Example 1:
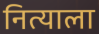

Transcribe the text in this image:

नित्याला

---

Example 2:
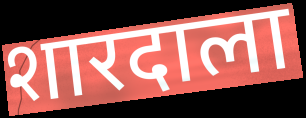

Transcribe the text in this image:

शारदाला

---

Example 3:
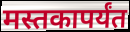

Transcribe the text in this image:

मस्तकापर्यंत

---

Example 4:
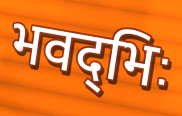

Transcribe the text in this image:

भवद्‌भिः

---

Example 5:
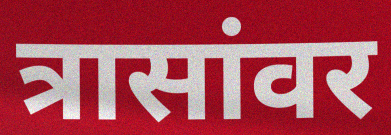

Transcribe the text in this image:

त्रासांवर